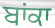
ਬਾਂਕਾ